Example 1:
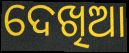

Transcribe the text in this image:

ଦେଖିଆ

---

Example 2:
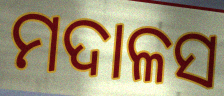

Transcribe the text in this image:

ମଦାଳସ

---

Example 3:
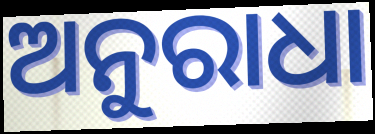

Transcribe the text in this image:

ଅନୁରାଧା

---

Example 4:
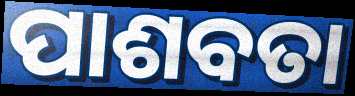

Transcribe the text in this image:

ପାଶବତା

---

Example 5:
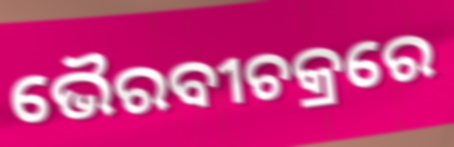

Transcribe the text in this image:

ଭୈରବୀଚକ୍ରରେ